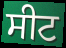
ਸੀਟ